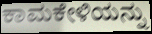
ಕಾಮಕೇಳಿಯನ್ನು